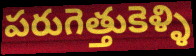
పరుగెత్తుకెళ్ళి